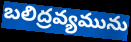
బలిద్రవ్యమును